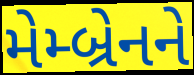
મેમ્બ્રેનને